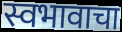
स्वभावाचा